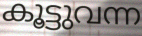
കൂട്ടുവന്ന